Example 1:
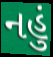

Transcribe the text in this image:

નહું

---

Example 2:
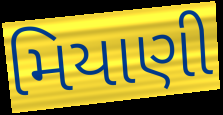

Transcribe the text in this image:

મિયાણી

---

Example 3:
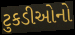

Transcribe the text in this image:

ટુકડીઓનો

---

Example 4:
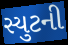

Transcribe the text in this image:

સ્યુટની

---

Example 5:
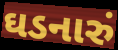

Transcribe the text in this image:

ઘડનારું